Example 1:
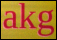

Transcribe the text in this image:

akg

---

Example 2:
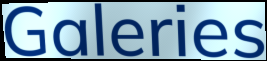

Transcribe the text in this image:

Galeries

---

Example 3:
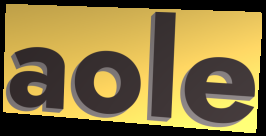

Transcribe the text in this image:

aole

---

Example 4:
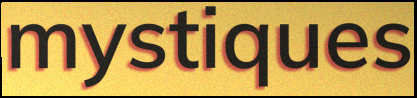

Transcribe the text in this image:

mystiques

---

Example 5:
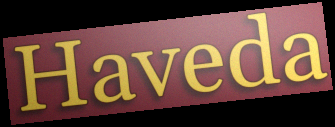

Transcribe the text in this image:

Haveda